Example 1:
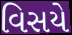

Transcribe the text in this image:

વિસયે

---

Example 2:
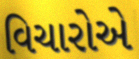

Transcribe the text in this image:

વિચારોએ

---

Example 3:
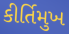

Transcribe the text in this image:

કીર્તિમુખ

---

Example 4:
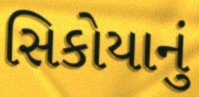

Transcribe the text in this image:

સિકોયાનું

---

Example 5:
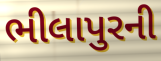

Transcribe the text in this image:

ભીલાપુરની